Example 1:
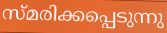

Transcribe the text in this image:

സ്മരിക്കപ്പെടുന്നു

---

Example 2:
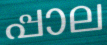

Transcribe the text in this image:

പ്പാല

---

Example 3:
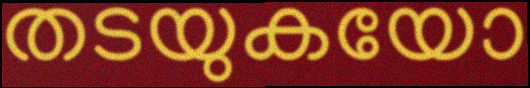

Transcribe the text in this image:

തടയുകയോ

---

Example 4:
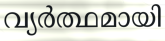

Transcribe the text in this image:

വ്യർത്ഥമായി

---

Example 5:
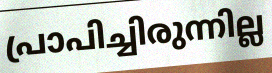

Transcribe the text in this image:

പ്രാപിച്ചിരുന്നില്ല